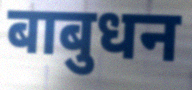
बाबुधन